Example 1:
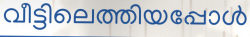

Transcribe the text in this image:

വീട്ടിലെത്തിയപ്പോൾ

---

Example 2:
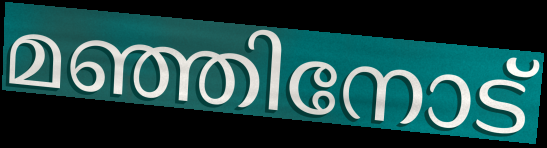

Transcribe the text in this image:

മഞ്ഞിനോട്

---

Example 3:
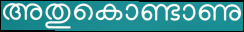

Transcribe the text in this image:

അതുകൊണ്ടാണു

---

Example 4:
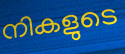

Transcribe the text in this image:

നികളുടെ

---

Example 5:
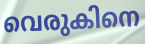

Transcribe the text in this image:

വെരുകിനെ